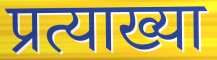
प्रत्याख्या